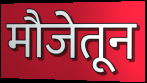
मौजेतून